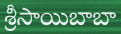
శ్రీసాయిబాబా